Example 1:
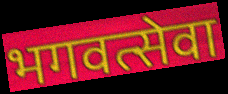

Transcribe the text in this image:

भगवत्सेवा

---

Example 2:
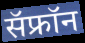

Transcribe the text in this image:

सॅफ्रॉन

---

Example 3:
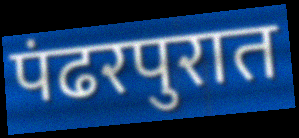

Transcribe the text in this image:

पंढरपुरात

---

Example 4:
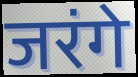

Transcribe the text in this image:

जरंगे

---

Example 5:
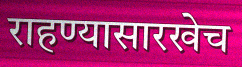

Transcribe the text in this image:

राहण्यासारखेच